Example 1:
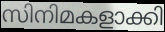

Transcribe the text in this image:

സിനിമകളാക്കി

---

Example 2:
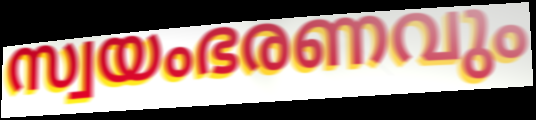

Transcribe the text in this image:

സ്വയംഭരണവും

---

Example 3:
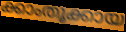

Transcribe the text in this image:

ക്കാംതൂക്കായ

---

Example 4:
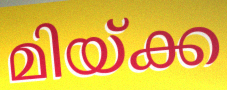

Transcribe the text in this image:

മിയ്ക്ക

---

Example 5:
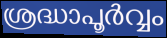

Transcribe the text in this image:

ശ്രദ്ധാപൂർവ്വം